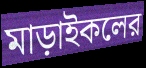
মাড়াইকলের